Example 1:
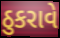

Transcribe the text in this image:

ઠુકરાવે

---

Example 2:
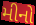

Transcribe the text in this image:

મીનો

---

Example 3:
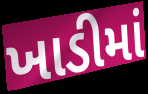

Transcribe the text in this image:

ખાડીમાં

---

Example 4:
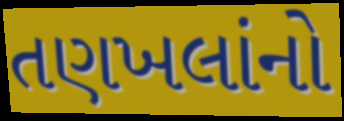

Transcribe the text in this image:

તણખલાંનો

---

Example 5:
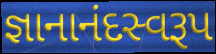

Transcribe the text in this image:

જ્ઞાનાનંદસ્વરૂપ